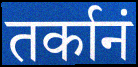
तर्कानं